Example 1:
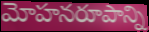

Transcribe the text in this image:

మోహనరూపాన్ని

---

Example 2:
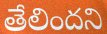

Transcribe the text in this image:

తేలిందని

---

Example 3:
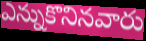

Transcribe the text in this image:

ఎన్నుకొనినవారు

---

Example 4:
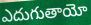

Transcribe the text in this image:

ఎదుగుతాయో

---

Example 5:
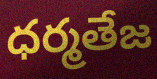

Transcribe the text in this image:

ధర్మతేజ